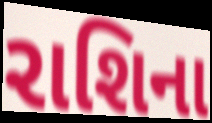
રાશિના